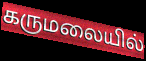
கருமலையில்